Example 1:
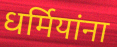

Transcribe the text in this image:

धर्मियांना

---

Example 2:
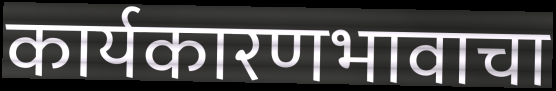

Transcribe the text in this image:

कार्यकारणभावाचा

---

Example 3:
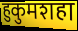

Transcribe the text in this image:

हुकुमशहा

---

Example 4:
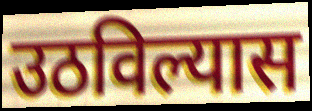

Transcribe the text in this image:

उठविल्यास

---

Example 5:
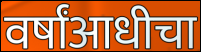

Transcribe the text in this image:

वर्षांआधीचा